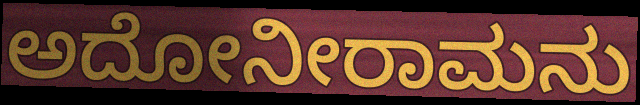
ಅದೋನೀರಾಮನು